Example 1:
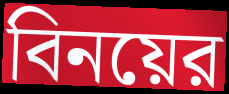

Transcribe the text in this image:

বিনয়ের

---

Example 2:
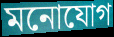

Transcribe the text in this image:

মনোযোগ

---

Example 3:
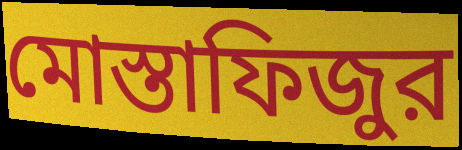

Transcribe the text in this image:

মোস্তাফিজুর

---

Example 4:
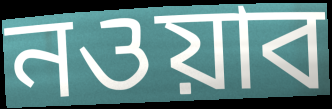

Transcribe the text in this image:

নওয়াব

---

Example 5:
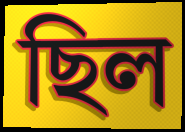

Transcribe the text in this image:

ছিল